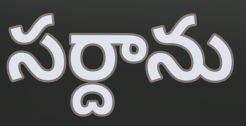
సర్దాను